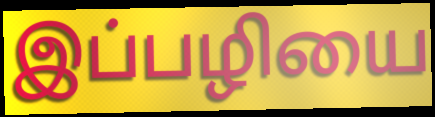
இப்பழியை